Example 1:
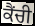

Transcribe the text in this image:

ਕੈਂਚੀ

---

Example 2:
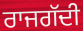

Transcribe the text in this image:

ਰਾਜਗੱਦੀ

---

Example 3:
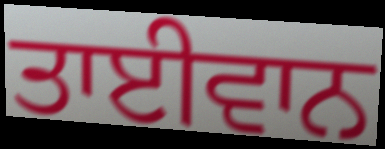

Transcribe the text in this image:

ਤਾਈਵਾਨ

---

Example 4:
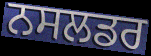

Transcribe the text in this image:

ਨਸਲਡਰ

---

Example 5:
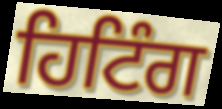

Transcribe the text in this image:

ਹਿਟਿੰਗ